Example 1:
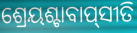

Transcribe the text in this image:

ଶ୍ରେୟଶ୍ଚାବାପ୍‌ସୀତି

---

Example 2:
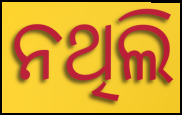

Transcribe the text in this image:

ନଥିଲି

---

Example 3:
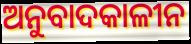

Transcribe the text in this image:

ଅନୁବାଦକାଳୀନ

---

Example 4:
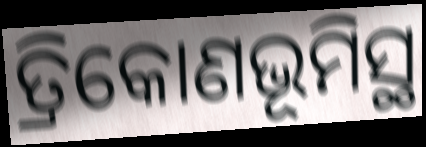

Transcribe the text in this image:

ତ୍ରିକୋଣଭୂମିସ୍ଥ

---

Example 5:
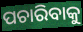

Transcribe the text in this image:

ପଚାରିବାକୁ